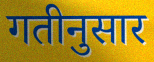
गतीनुसार